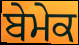
ਬੇਮੇਕ